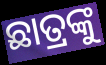
ଛାତ୍ରଙ୍କୁ